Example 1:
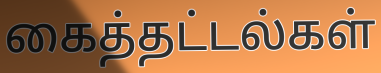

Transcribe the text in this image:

கைத்தட்டல்கள்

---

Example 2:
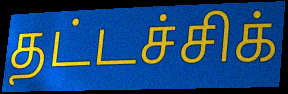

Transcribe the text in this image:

தட்டச்சிக்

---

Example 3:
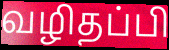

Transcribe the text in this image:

வழிதப்பி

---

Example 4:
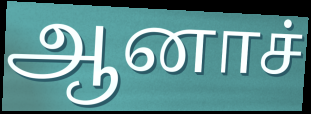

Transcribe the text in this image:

ஆனாச்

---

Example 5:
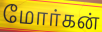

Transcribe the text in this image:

மோர்கன்